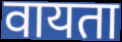
वायता